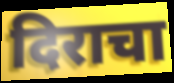
दिराचा